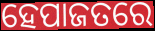
ହେପାଜତରେ